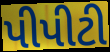
પીપીટી